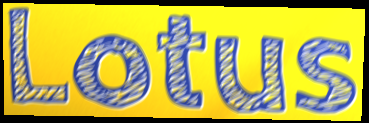
Lotus